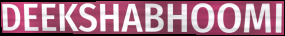
DEEKSHABHOOMI